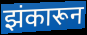
झंकारून